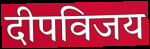
दीपविजय